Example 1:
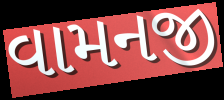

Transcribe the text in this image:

વામનજી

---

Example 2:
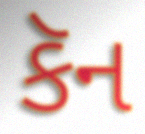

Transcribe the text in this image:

કૅન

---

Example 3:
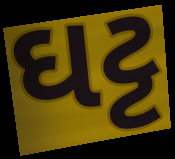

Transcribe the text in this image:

ઘટ્ટ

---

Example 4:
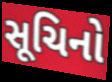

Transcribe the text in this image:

સૂચિનો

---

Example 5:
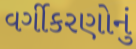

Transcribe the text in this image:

વર્ગીકરણોનું